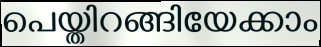
പെയ്തിറങ്ങിയേക്കാം